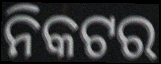
ନିକଟର